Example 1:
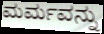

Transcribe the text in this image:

ಮರ್ಮವನ್ನು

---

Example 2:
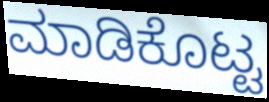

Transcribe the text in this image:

ಮಾಡಿಕೊಟ್ಟ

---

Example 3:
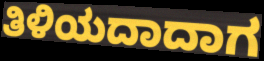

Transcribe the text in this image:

ತಿಳಿಯದಾದಾಗ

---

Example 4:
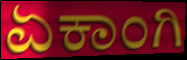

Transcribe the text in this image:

ಏಕಾಂಗಿ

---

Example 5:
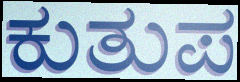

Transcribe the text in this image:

ಕುತುಪ